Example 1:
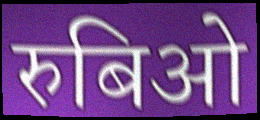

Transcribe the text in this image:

रुबिओ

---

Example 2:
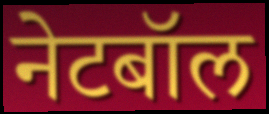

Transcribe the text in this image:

नेटबॉल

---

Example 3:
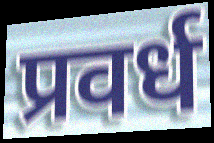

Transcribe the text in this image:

प्रवर्ध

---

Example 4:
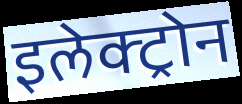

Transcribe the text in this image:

इलेक्ट्रोन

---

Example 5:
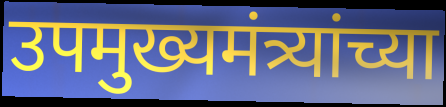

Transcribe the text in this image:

उपमुख्यमंत्र्यांच्या